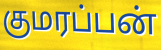
குமரப்பன்